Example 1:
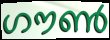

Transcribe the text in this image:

ഗൗൺ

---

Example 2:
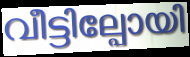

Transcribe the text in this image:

വീട്ടില്പോയി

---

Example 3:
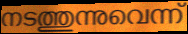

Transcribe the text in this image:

നടത്തുന്നുവെന്ന്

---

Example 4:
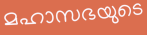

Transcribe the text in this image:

മഹാസഭയുടെ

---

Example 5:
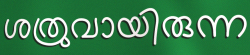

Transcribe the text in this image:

ശത്രുവായിരുന്ന